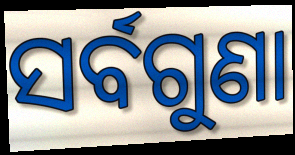
ସର୍ବଗୁଣା